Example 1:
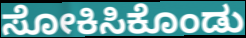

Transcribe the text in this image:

ಸೋಕಿಸಿಕೊಂಡು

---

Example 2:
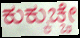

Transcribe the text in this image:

ಕುಕ್ಕುಚ್ಚೇ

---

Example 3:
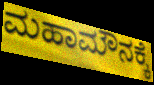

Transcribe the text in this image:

ಮಹಾಮೌನಕ್ಕೆ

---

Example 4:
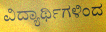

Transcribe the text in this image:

ವಿದ್ಯಾರ್ಥಿಗಳಿಂದ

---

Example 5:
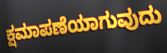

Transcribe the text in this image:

ಕ್ಷಮಾಪಣೆಯಾಗುವುದು